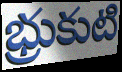
భ్రుకుటి